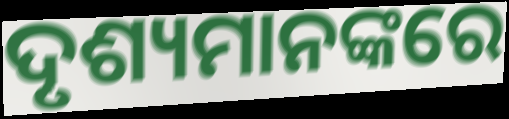
ଦୃଶ୍ୟମାନଙ୍କରେ